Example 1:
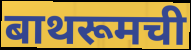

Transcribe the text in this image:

बाथरूमची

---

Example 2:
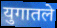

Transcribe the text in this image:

युगातले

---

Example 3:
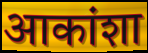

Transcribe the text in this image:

आकांशा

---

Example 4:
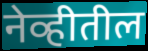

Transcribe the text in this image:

नेव्हीतील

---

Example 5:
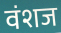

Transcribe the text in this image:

वंशज